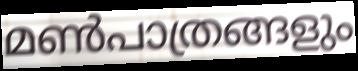
മൺപാത്രങ്ങളും